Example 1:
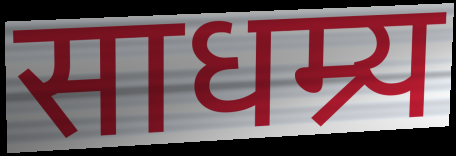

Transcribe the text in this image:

साधम्र्य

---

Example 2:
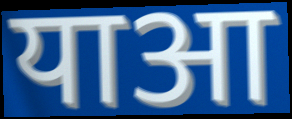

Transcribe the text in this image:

याआ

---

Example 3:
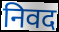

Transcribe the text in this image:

निवद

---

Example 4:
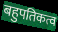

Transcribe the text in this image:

बहुपतिकत्व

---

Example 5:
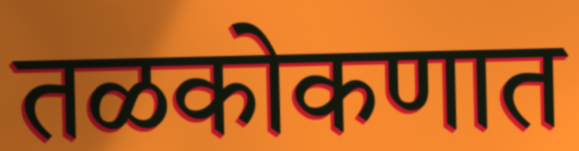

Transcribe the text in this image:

तळकोकणात